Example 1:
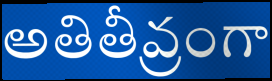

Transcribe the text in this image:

అతితీవ్రంగా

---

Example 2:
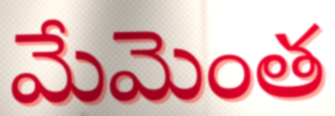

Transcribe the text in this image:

మేమెంత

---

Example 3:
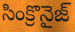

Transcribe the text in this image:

సింక్రొనైజ్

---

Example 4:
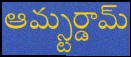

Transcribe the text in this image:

ఆమ్స్టర్డామ్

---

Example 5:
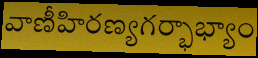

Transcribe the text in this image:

వాణీహిరణ్యగర్భాభ్యాం